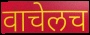
वाचेलच